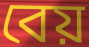
বেয়